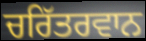
ਚਰਿੱਤਰਵਾਨ